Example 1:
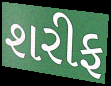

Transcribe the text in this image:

શરીફ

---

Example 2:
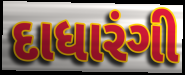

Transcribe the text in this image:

દાધારંગી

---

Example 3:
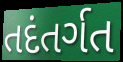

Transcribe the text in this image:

તદંતર્ગત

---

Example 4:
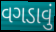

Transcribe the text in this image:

વગડાવું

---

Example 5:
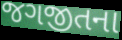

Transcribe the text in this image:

જગજીતના